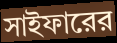
সাইফারের